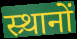
स्र्थानों